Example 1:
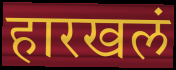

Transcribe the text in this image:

हारखलं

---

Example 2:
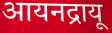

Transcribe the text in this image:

आयनद्रायू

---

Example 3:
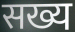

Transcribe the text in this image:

सख्य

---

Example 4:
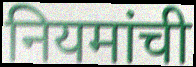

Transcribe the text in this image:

नियमांची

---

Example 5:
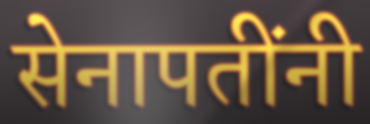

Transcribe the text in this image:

सेनापतींनी